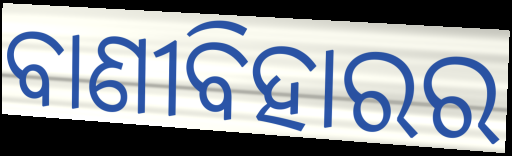
ବାଣୀବିହାରର